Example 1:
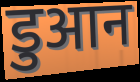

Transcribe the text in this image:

डुआन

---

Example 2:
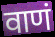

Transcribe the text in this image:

वाणं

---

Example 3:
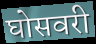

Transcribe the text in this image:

घोसवरी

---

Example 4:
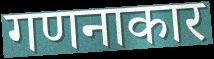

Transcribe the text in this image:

गणनाकार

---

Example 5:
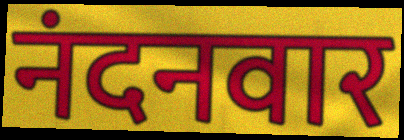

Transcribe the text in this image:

नंदनवार